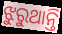
ଝୁରୁଥାନ୍ତି